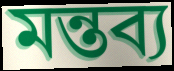
মন্তব্য়